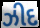
ઝીદ